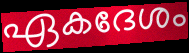
ഏകദേശം